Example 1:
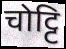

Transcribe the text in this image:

चोट्टि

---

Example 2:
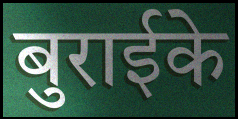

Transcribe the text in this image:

बुराईके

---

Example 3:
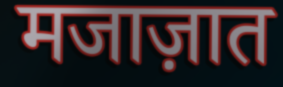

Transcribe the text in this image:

मजाज़ात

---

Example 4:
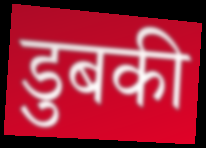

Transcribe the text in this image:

डुबकी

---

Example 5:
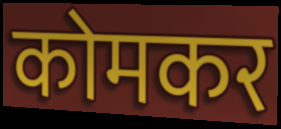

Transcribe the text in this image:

कोमकर